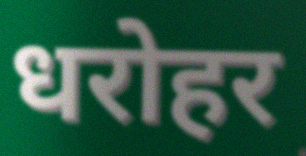
धरोहर